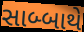
સાબ્બાથે